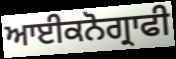
ਆਈਕਨੋਗ੍ਰਾਫੀ